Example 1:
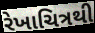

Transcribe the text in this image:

રેખાચિત્રથી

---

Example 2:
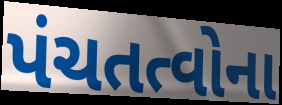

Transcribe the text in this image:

પંચતત્વોના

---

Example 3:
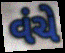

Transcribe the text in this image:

વંચે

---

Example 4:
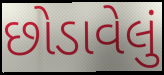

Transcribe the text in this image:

છોડાવેલું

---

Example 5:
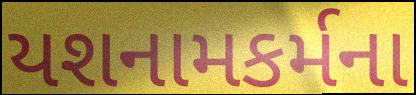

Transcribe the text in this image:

યશનામકર્મના